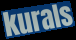
kurals